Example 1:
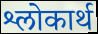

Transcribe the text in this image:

श्लोकार्थ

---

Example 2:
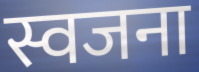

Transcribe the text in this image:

स्वजना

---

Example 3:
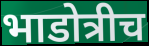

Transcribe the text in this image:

भाडोत्रीच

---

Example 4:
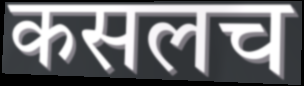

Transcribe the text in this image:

कसलच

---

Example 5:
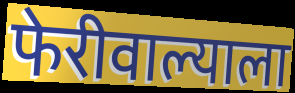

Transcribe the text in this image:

फेरीवाल्याला